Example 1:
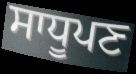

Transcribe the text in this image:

ਸਾਧੂਪਣ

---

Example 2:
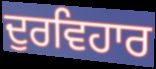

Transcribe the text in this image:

ਦੁਰਵਿਹਾਰ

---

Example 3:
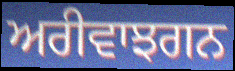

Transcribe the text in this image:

ਅਰੀਵਾਝਗਨ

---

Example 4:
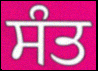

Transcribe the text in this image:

ਸੰਤ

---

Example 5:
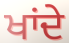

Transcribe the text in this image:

ਖਾਂਦੇ